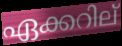
ഏക്കറില്